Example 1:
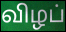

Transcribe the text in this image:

விழப்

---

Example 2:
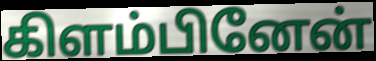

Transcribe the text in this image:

கிளம்பினேன்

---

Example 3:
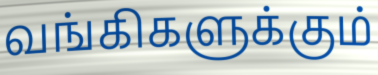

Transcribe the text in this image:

வங்கிகளுக்கும்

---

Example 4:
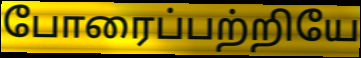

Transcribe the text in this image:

போரைப்பற்றியே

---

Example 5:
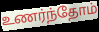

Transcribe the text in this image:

உணர்ந்தோம்